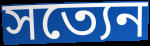
সত্যেন